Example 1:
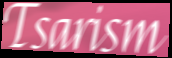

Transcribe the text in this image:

Tsarism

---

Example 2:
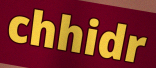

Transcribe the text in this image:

chhidr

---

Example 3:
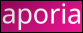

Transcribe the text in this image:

aporia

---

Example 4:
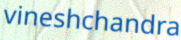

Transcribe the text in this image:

vineshchandra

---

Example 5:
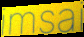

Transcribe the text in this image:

imsai